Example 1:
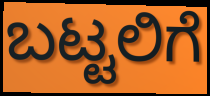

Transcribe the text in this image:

ಬಟ್ಟಲಿಗೆ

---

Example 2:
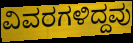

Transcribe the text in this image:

ವಿವರಗಳಿದ್ದವು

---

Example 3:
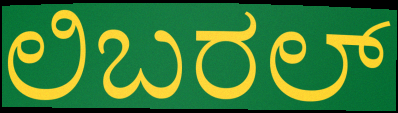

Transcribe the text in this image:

ಲಿಬರಲ್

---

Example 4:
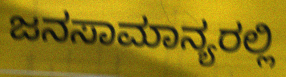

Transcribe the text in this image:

ಜನಸಾಮಾನ್ಯರಲ್ಲಿ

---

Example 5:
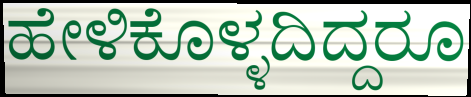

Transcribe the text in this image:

ಹೇಳಿಕೊಳ್ಳದಿದ್ದರೂ